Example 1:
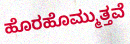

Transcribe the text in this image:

ಹೊರಹೊಮ್ಮುತ್ತವೆ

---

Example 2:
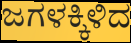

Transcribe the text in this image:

ಜಗಳಕ್ಕಿಳಿದ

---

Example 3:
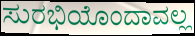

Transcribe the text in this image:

ಸುರಭಿಯೊಂದಾವಲ್ಲ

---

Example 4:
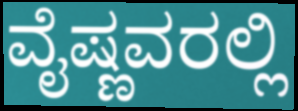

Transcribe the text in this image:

ವೈಷ್ಣವರಲ್ಲಿ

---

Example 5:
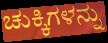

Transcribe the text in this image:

ಚುಕ್ಕಿಗಳನ್ನು